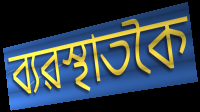
ব্যৱস্থাতকৈ